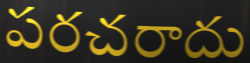
పరచరాదు